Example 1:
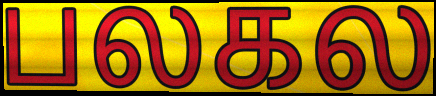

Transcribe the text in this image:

பலகல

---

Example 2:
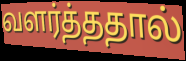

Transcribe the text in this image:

வளர்த்ததால்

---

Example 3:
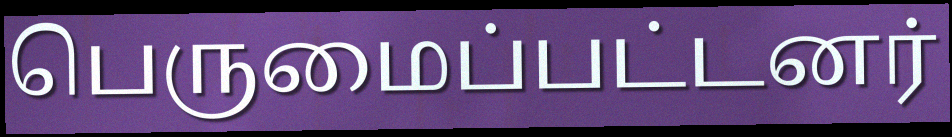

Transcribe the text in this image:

பெருமைப்பட்டனர்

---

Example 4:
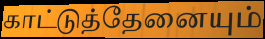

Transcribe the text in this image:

காட்டுத்தேனையும்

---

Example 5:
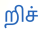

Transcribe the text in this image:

றிச்